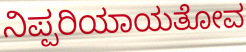
ನಿಪ್ಪರಿಯಾಯತೋವ